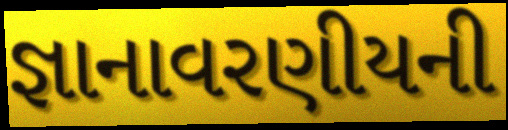
જ્ઞાનાવરણીયની